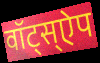
वॉट्स्ऐप